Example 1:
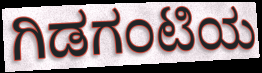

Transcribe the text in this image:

ಗಿಡಗಂಟಿಯ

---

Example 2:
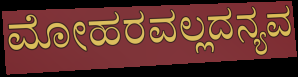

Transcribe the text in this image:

ಮೋಹರವಲ್ಲದನ್ಯವ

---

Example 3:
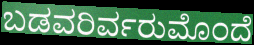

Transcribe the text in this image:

ಬಡವರಿರ್ವರುಮೊಂದೆ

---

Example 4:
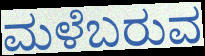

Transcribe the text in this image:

ಮಳೆಬರುವ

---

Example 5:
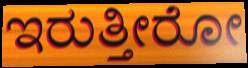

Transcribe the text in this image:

ಇರುತ್ತೀರೋ